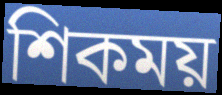
শিকময়